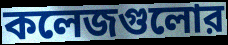
কলেজগুলোর